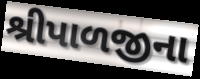
શ્રીપાળજીના